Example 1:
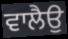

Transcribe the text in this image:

ਵਾਲੈਉ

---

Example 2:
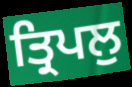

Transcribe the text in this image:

ਤ੍ਰਿਪਲੁ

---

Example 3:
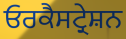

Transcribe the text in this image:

ਓਰਕੈਸਟ੍ਰੇਸ਼ਨ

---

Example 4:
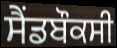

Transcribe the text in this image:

ਸੈਂਡਬੌਕਸੀ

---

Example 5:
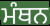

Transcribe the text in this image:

ਮੰਥਨ